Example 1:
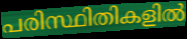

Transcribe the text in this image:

പരിസ്ഥിതികളിൽ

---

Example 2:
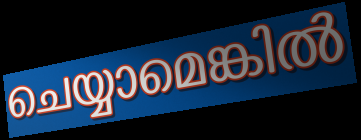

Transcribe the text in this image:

ചെയ്യാമെങ്കിൽ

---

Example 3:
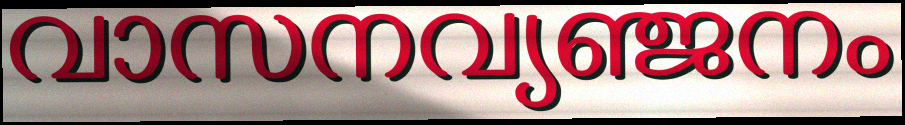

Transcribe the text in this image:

വാസനവ്യഞ്ജനം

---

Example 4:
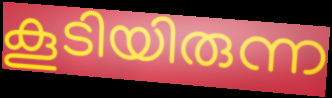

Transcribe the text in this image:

കൂടിയിരുന്ന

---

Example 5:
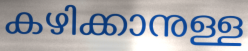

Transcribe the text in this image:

കഴിക്കാനുള്ള